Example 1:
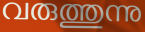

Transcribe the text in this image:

വരുത്തുന്നു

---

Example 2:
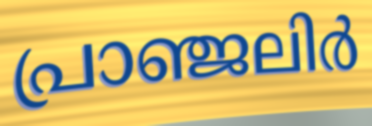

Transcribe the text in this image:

പ്രാഞ്ജലിർ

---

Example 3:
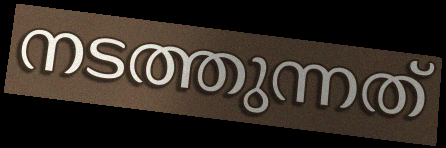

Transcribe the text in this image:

നടത്തുന്നത്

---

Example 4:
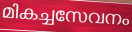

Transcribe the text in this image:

മികച്ചസേവനം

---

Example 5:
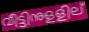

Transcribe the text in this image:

വീട്ടിനുളളില്